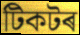
টিকটৰ